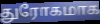
துரோகமாக